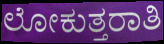
ಲೋಕುತ್ತರಾತಿ